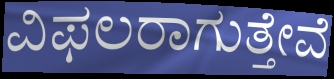
ವಿಫಲರಾಗುತ್ತೇವೆ